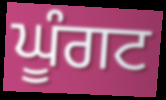
ਘੂੰਗਟ